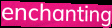
enchanting